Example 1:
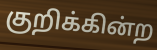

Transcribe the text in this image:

குறிக்கின்ற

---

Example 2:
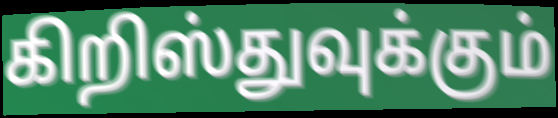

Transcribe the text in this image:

கிறிஸ்துவுக்கும்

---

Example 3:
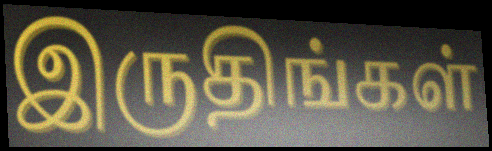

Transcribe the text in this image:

இருதிங்கள்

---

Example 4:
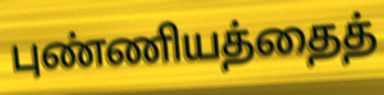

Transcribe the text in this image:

புண்ணியத்தைத்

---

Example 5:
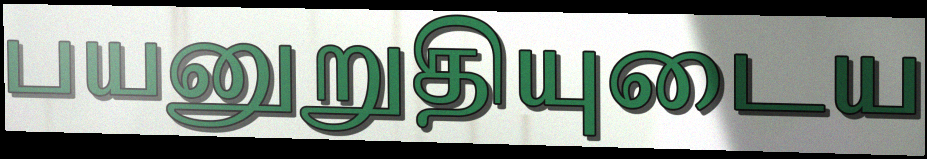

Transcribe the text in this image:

பயனுறுதியுடைய